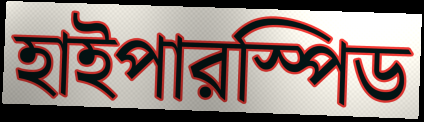
হাইপারস্পিড